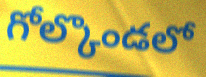
గోల్కొండలో